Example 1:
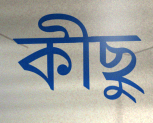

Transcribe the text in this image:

কীছু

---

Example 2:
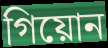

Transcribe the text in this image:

গিয়োন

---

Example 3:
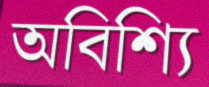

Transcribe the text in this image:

অবিশ্যি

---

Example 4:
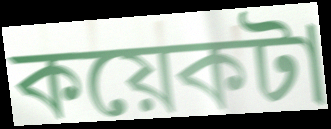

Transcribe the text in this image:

কয়েকটা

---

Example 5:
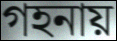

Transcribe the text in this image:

গহনায়